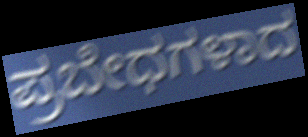
ಪ್ರಬೇಧಗಳಾದ